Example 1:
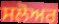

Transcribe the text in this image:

ਸਲੋਅਰ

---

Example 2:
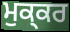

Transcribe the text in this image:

ਮੁਕ੍ਕਰ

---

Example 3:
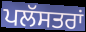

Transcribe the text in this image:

ਪਲੱਸਤਰਾਂ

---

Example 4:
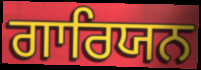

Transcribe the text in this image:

ਗਾਰਿਯਨ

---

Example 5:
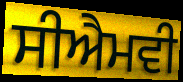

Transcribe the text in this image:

ਸੀਐਮਵੀ